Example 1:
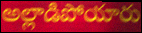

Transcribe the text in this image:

అల్లాడిపోయారు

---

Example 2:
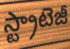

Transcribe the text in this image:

స్ట్రాటెజీ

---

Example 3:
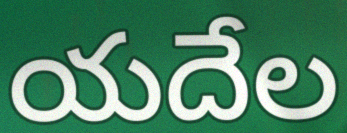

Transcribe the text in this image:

యదేల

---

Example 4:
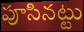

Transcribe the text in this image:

పూసినట్టు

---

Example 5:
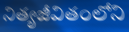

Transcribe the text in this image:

నిత్యజీవితంలోని